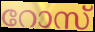
റോസ്